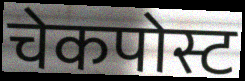
चेकपोस्ट